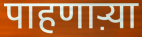
पाहणाऱ्‍या